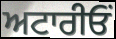
ਅਟਾਰੀਓਂ